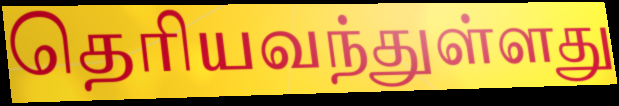
தெரியவந்துள்ளது